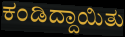
ಕಂಡಿದ್ದಾಯಿತು